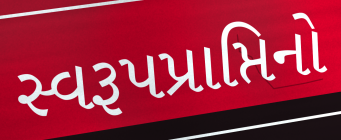
સ્વરૂપપ્રાપ્તિનો